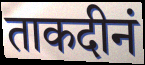
ताकदीनं